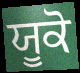
ਯੂਕੋ